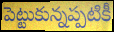
పెట్టుకున్నప్పటికీ